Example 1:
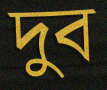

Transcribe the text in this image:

দুব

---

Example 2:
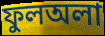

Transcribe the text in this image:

ফুলঅলা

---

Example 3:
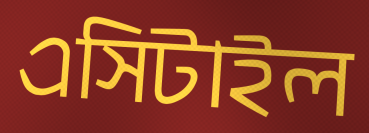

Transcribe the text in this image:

এসিটাইল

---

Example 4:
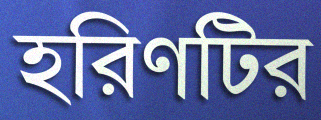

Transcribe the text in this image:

হরিণটির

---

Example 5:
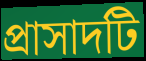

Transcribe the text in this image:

প্রাসাদটি